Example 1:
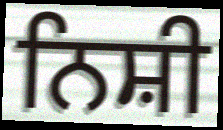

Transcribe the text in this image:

ਨਿਸ਼ੀ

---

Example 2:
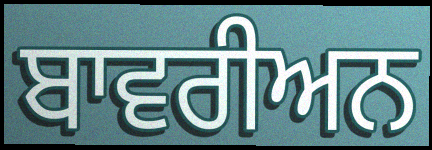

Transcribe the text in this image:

ਬਾਵਰੀਅਨ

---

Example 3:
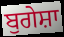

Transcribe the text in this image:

ਬੁਗੇਸ਼ਾ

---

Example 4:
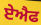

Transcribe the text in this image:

ਏਐਫ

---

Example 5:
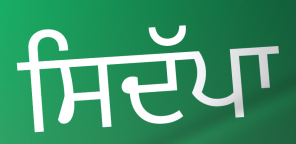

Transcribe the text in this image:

ਸਿਦੱਪਾ